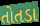
તોતડા